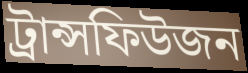
ট্ৰান্সফিউজন